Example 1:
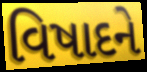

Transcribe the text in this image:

વિષાદને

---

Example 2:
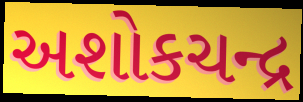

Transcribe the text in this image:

અશોકચન્દ્ર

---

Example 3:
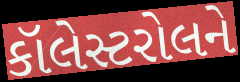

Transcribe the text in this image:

કૉલેસ્ટરોલને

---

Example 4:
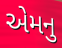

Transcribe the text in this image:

એમનુ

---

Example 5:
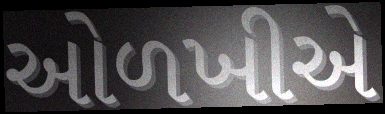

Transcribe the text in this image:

ઓળખીએ